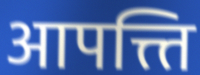
आपत्त्ति